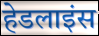
हेडलाइंस